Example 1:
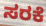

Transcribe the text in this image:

ಸರಕೆ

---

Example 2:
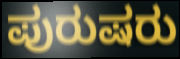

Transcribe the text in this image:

ಪುರುಷರು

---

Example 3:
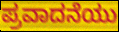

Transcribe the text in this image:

ಪ್ರವಾದನೆಯು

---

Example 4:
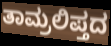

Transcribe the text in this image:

ತಾಮ್ರಲಿಪ್ತದ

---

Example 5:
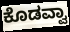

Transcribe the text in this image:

ಕೊಡವ್ವಾ